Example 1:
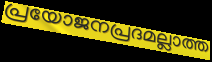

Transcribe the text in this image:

പ്രയോജനപ്രദമല്ലാത്ത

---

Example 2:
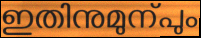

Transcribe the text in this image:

ഇതിനുമുന്പും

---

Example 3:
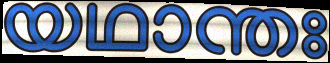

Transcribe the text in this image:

യഥാന്തഃ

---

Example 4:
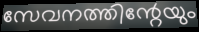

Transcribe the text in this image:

സേവനത്തിന്റേയും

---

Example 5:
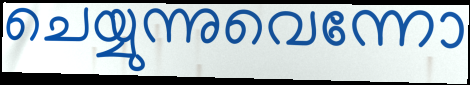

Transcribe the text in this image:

ചെയ്യുന്നുവെന്നോ